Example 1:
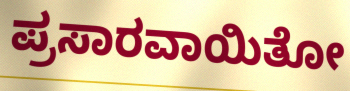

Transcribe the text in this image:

ಪ್ರಸಾರವಾಯಿತೋ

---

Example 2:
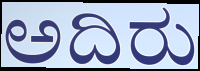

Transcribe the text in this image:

ಅದಿರು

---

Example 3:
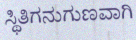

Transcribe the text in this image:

ಸ್ಥಿತಿಗನುಗುಣವಾಗಿ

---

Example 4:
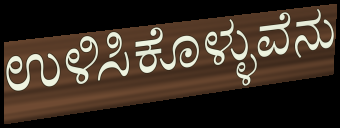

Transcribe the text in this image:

ಉಳಿಸಿಕೊಳ್ಳುವೆನು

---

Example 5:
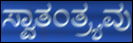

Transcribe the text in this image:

ಸ್ವಾತಂತ್ರ್ಯವು